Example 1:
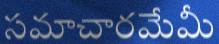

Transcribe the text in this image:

సమాచారమేమీ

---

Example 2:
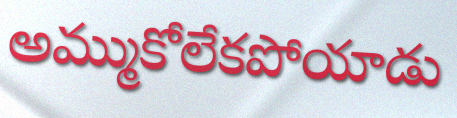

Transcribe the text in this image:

అమ్ముకోలేకపోయాడు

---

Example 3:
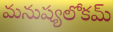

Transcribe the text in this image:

మనుష్యలోకమ్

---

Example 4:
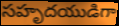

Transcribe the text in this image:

సహృదయుడిగా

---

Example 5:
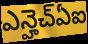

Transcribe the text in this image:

ఎన్హెచ్ఏఐ